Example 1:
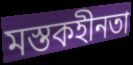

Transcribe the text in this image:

মস্তকহীনতা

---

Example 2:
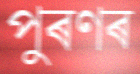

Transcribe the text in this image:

পুৰণৰ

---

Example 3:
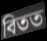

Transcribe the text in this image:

বিতত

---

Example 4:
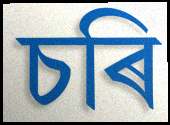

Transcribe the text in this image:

চৰি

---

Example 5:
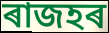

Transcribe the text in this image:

ৰাজহৰ